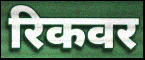
रिकवर